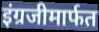
इंग्रजीमार्फत